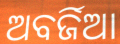
ଅବର୍ଜିଆ